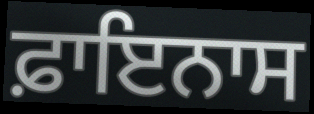
ਫ਼ਾਇਨਾਸ